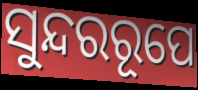
ସୁନ୍ଦରରୂପେ